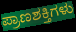
ಪ್ರಾಣಶಕ್ತಿಗಳು